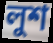
লুশ